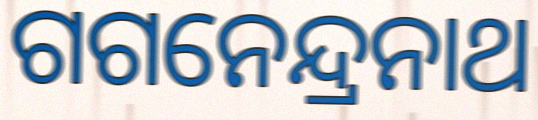
ଗଗନେନ୍ଦ୍ରନାଥ